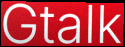
Gtalk